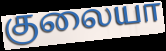
குலையா